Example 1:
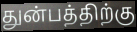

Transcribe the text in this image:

துன்பத்திற்கு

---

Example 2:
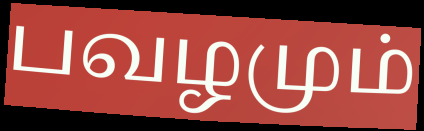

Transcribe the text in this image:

பவழமும்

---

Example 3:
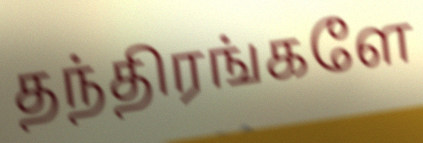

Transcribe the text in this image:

தந்திரங்களே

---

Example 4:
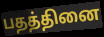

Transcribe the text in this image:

பதத்தினை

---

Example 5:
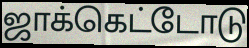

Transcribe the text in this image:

ஜாக்கெட்டோடு